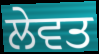
ਲੇਵਤ